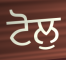
ਟੋਲੁ